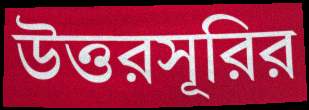
উত্তরসূরির